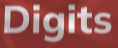
Digits